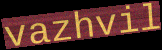
vazhvil